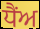
ਧੈਂਅ